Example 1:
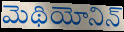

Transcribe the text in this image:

మెథియోనిన్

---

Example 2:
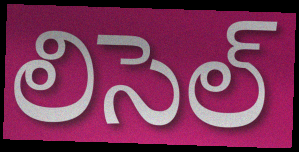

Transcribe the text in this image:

లిసెల్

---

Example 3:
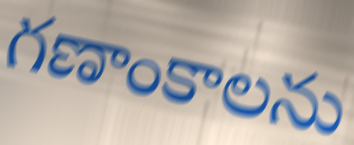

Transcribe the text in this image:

గణాంకాలను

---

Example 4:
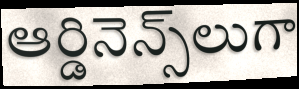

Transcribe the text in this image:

ఆర్డినెన్స్‌లుగా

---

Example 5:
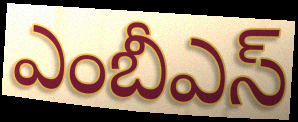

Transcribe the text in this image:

ఎంబీఎస్